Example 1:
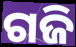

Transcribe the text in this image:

ଗଜି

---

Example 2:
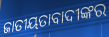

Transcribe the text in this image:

ଜାତୀୟତାବାଦୀଙ୍କର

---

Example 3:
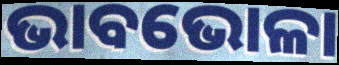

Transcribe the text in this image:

ଭାବଭୋଳା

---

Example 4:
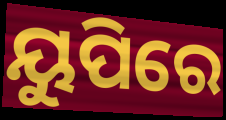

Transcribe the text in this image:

ୟୁପିରେ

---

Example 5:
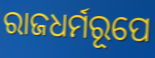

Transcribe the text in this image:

ରାଜଧର୍ମରୂପେ